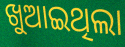
ଖୁଆଇଥିଲା